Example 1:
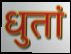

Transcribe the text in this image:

धुतां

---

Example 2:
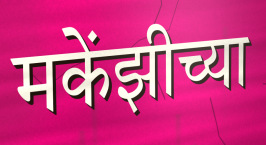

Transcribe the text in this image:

मकेंझीच्या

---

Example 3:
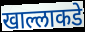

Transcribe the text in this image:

खाल्लाकडे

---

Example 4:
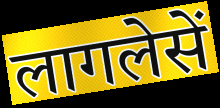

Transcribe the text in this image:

लागलेसें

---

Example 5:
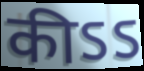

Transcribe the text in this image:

कीऽऽ